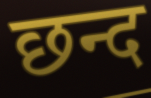
छन्‍द